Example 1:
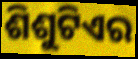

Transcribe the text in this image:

ଶିଶୁଟିଏର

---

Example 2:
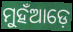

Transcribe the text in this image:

ମୁହଁଆଡ଼େ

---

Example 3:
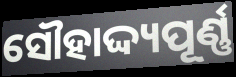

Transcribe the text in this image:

ସୌହାଦ୍ଦ୍ୟପୂର୍ଣ୍ଣ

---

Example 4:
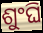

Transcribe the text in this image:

ଶୁଂଘି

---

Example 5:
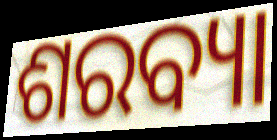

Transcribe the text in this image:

ଶରବ୍ୟା